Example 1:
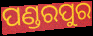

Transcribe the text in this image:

ପଣ୍ଡରପୁର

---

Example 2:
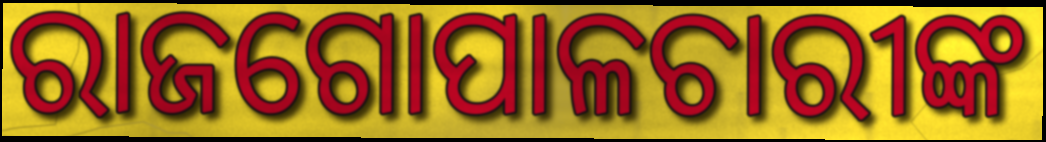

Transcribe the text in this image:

ରାଜଗୋପାଳଚାରୀଙ୍କ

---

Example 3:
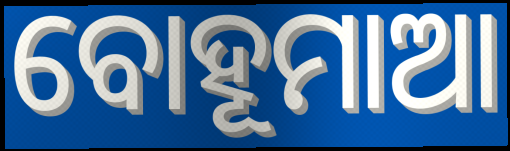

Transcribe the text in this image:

ବୋହୂମାଆ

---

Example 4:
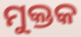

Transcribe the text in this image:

ମୁକ୍ତକ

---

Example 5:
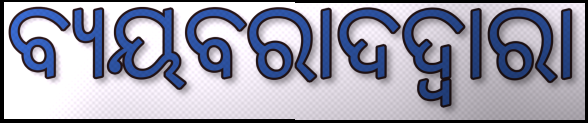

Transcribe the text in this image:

ବ୍ୟୟବରାଦଦ୍ଵାରା